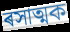
ৰসাত্মক